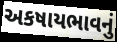
અકષાયભાવનું